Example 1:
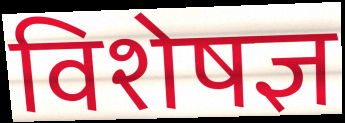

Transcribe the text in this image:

विशेषज्ञ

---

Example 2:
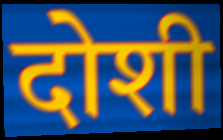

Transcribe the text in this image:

दोशी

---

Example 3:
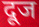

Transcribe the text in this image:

दूज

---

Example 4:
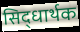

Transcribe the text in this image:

सिद्धार्थक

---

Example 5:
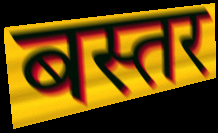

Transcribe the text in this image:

बस्तर